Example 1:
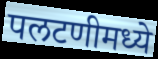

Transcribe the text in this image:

पलटणीमध्ये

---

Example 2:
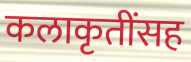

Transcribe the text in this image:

कलाकृतींसह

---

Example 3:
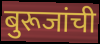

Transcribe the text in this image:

बुरूजांची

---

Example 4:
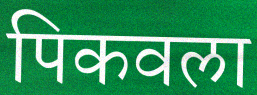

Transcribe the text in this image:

पिकवला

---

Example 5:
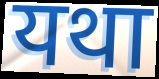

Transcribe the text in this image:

यथा